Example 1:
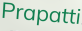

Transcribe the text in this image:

Prapatti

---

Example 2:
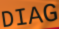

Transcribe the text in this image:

DIAG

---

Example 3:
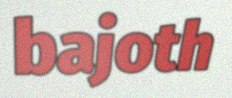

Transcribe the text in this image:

bajoth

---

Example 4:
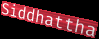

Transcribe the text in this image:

Siddhattha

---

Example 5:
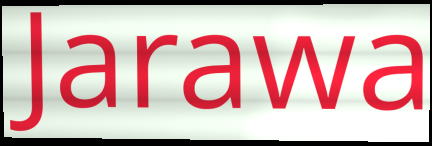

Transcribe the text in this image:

Jarawa